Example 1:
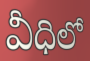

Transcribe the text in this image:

వీధిలో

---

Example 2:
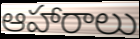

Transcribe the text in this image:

ఆహారాలు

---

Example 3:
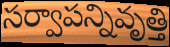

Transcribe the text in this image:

సర్వాపన్నివృత్తి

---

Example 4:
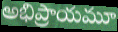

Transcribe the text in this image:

అభిప్రాయమూ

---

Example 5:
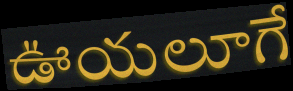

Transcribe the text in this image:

ఊయలూగే